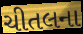
ચીતલના